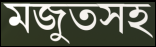
মজুতসহ